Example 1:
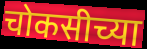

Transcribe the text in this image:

चोकसीच्या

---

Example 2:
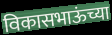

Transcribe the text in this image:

विकासभाऊंच्या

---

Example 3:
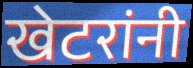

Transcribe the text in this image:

खेटरांनी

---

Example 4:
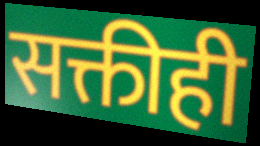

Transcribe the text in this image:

सक्तीही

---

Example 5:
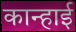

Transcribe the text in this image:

कान्हाई